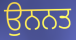
ਉਨਨਤ